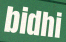
bidhi